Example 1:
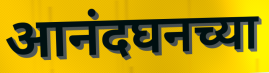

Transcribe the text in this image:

आनंदघनच्या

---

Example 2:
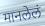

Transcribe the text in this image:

मानलेलं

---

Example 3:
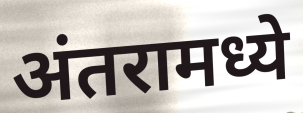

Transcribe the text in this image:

अंतरामध्ये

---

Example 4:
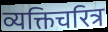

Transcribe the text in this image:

व्यक्तिचरित्र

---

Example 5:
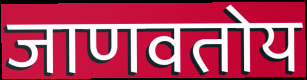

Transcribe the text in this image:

जाणवतोय